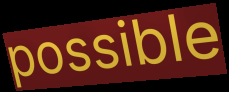
possible